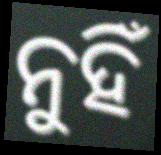
ନୁହିଁ